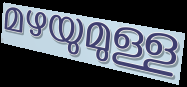
മഴയുമുള്ള